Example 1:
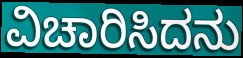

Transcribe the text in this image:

ವಿಚಾರಿಸಿದನು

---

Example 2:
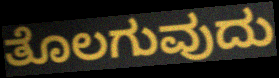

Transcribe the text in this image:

ತೊಲಗುವುದು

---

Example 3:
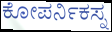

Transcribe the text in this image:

ಕೋಪರ್ನಿಕಸ್ನ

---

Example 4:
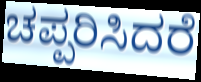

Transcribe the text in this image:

ಚಪ್ಪರಿಸಿದರೆ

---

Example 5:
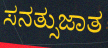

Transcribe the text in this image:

ಸನತ್ಸುಜಾತ